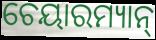
ଚେୟାରମ୍ୟାନ୍